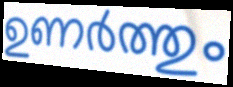
ഉണർത്തും